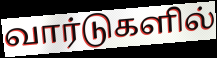
வார்டுகளில்